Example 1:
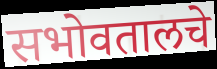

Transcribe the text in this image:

सभोवतालचे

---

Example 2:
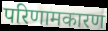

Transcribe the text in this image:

परिणामकारण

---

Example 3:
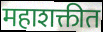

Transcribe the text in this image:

महाशक्तीत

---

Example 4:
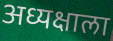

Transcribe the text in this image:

अध्यक्षाला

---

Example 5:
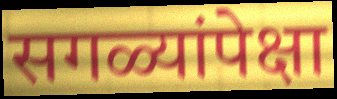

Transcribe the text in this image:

सगळ्यांपेक्षा